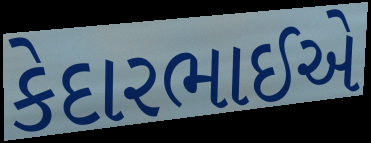
કેદારભાઈએ